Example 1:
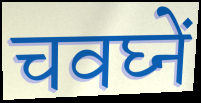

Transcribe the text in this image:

चवघ्नें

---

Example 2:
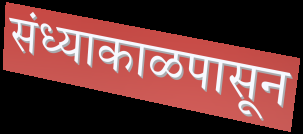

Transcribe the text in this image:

संध्याकाळपासून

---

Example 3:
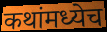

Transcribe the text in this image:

कथांमध्येच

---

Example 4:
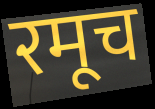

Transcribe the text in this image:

रमूच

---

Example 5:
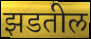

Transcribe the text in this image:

झडतील